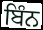
ਬਿੰਨ